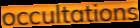
occultations